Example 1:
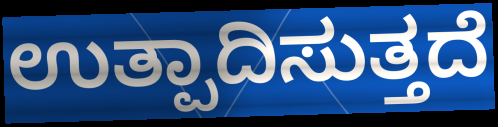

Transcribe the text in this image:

ಉತ್ಪಾದಿಸುತ್ತದೆ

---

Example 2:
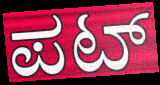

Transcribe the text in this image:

ಪಟ್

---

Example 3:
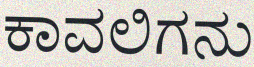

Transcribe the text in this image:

ಕಾವಲಿಗನು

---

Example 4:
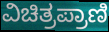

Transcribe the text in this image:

ವಿಚಿತ್ರಪ್ರಾಣಿ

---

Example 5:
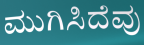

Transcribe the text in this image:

ಮುಗಿಸಿದೆವು